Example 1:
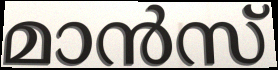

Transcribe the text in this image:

മാൻസ്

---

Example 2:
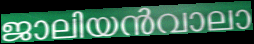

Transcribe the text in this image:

ജാലിയൻവാലാ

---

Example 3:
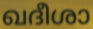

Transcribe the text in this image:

ഖദീശാ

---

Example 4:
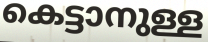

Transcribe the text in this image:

കെട്ടാനുള്ള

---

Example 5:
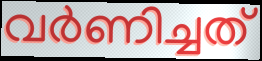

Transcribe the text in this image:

വർണിച്ചത്